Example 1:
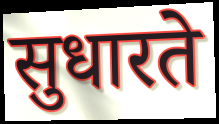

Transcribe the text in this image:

सुधारते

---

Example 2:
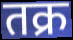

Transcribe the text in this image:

तक्र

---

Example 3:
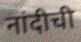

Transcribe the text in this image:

नांदीची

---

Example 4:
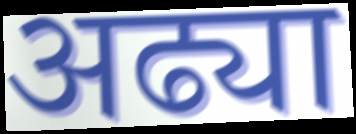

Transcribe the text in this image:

अढ्या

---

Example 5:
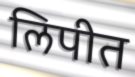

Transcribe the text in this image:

लिपीत